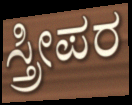
ಸ್ತ್ರೀಪರ